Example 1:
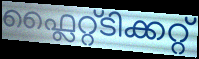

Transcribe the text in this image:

ഫ്ലൈറ്റ്ടിക്കറ്റ്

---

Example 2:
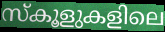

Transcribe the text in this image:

സ്കൂളുകളിലെ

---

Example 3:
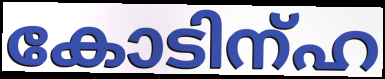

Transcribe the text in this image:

കോടിന്ഹ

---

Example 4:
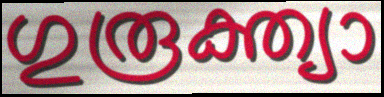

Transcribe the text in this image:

ഗുരൂക്ത്യാ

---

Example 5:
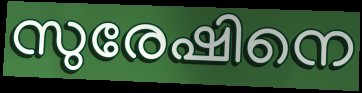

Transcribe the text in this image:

സുരേഷിനെ